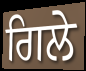
ਗਿਲੇ